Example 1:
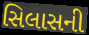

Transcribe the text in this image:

સિલાસની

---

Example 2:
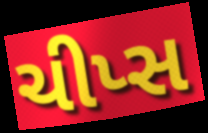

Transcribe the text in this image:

ચીપ્સ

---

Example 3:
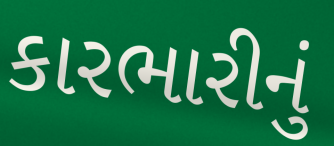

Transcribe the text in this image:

કારભારીનું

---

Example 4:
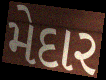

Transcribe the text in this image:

મેદાર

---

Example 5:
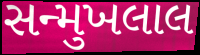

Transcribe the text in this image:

સન્મુખલાલ